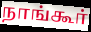
நாங்கூர்